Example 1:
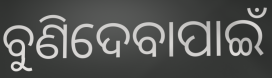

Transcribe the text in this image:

ବୁଣିଦେବାପାଇଁ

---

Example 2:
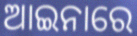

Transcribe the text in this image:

ଆଇନାରେ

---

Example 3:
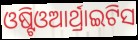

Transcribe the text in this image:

ଓଷ୍ଟିଓଆର୍ଥ୍ରାଇଟିସ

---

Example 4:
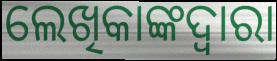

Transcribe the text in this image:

ଲେଖିକାଙ୍କଦ୍ୱାରା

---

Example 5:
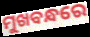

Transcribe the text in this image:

ମୁଖବନ୍ଧରେ